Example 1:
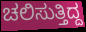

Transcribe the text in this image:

ಚಲಿಸುತ್ತಿದ್ದ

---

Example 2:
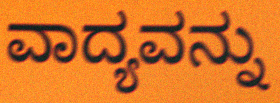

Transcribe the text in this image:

ವಾದ್ಯವನ್ನು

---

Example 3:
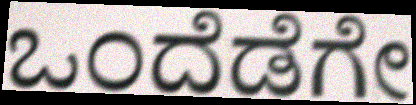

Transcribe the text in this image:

ಒಂದೆಡೆಗೇ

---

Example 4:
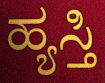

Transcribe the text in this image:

ಹ್ಯಸ್ತಿ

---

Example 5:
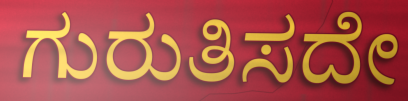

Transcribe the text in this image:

ಗುರುತಿಸದೇ